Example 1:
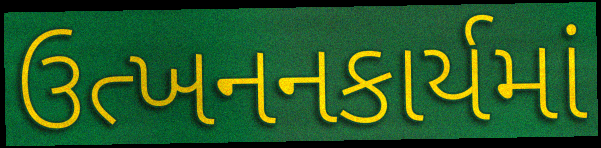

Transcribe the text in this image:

ઉત્ખનનકાર્યમાં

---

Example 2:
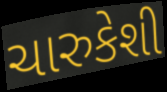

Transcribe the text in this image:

ચારુકેશી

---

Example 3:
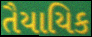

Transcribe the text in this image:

તૈયાયિક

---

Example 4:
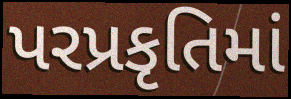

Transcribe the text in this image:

પરપ્રકૃતિમાં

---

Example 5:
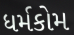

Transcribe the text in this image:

ધર્મકોમ